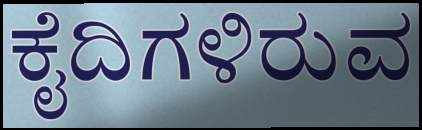
ಕೈದಿಗಳಿರುವ